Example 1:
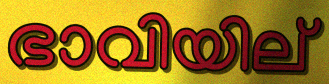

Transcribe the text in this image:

ഭാവിയില്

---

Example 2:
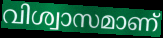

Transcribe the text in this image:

വിശ്വാസമാണ്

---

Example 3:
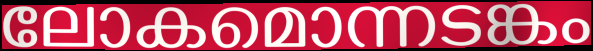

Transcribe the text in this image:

ലോകമൊന്നടങ്കം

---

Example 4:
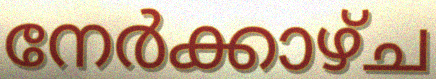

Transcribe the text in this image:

നേർക്കാഴ്ച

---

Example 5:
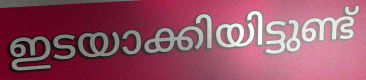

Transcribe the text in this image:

ഇടയാക്കിയിട്ടുണ്ട്